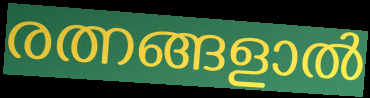
രത്നങ്ങളാൽ